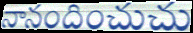
నానందించుచు